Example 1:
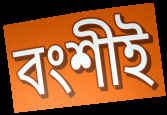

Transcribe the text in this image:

বংশীই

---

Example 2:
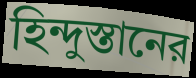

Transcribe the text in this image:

হিন্দুস্তানের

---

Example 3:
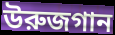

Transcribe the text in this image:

উরুজগান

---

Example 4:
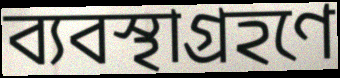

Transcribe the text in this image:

ব্যবস্থাগ্রহণে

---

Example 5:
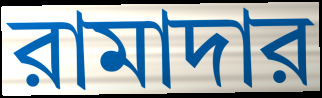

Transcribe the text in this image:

রামাদার